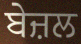
ਬੇਜ਼ਲ